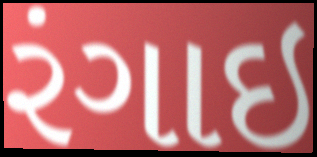
રંગાઇ